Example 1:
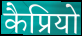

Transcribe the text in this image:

कैप्रियो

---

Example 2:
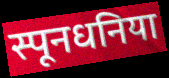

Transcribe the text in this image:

स्पूनधनिया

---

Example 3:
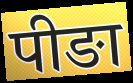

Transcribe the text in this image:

पीङा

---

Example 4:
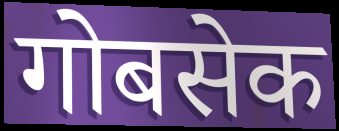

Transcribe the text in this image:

गोबसेक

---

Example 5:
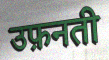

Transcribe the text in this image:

उफ़नती